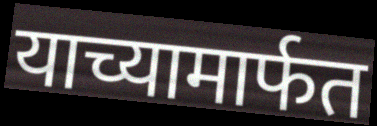
याच्यामार्फत